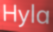
Hyla